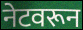
नेटवरून